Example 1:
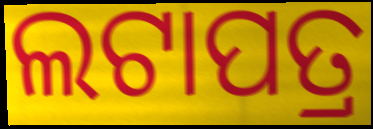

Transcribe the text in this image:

ଲଟାପତ୍ର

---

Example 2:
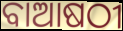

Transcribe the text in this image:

ବାଆଷଠୀ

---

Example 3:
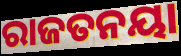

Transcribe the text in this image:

ରାଜତନୟା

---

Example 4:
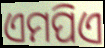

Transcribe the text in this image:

ଏମପିଏ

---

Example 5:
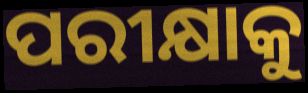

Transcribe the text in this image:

ପରୀକ୍ଷାକୁ